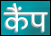
कैंप